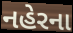
નહેરના